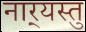
नार्यस्तु